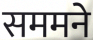
सममने